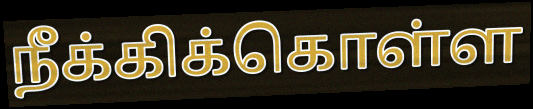
நீக்கிக்கொள்ள